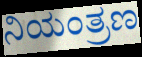
ನಿಯಂತ್ರಣ